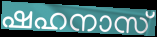
ഷഹനാസ്